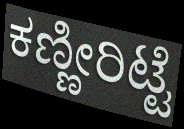
ಕಣ್ಣೀರಿಟ್ಟೆ